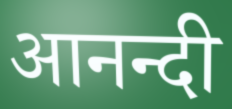
आनन्दी